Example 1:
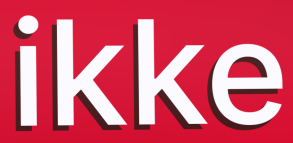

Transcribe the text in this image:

ikke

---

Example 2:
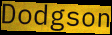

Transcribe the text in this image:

Dodgson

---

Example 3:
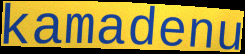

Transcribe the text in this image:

kamadenu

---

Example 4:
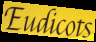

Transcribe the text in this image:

Eudicots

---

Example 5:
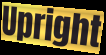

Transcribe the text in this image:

Upright